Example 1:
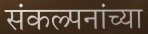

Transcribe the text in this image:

संकल्पनांच्या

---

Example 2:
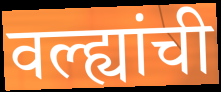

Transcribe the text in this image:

वल्ह्यांची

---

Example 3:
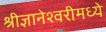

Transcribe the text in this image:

श्रीज्ञानेश्वरीमध्ये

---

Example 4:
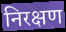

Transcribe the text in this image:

निरक्षण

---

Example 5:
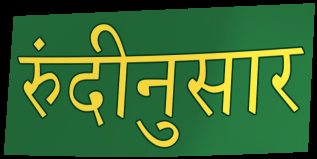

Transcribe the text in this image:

रुंदीनुसार